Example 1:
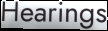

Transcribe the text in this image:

Hearings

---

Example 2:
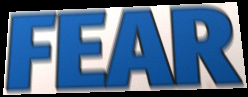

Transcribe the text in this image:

FEAR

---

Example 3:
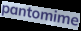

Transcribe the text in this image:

pantomime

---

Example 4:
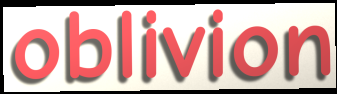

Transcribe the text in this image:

oblivion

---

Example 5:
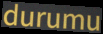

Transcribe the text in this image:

durumu